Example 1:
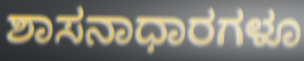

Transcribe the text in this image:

ಶಾಸನಾಧಾರಗಳೂ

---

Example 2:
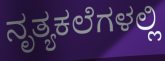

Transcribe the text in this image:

ನೃತ್ಯಕಲೆಗಳಲ್ಲಿ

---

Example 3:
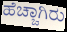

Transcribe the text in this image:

ಹೆಚ್ಚಾಗಿರು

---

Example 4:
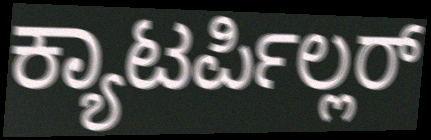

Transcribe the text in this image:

ಕ್ಯಾಟರ್ಪಿಲ್ಲರ್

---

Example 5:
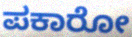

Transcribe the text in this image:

ಪಕಾರೋ